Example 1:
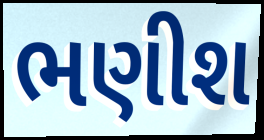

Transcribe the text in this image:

ભણીશ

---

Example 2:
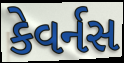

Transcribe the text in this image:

કેવર્નસ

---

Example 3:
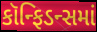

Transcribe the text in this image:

કૉન્ફિડન્સમાં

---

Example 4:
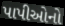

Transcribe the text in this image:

પાપીઓનો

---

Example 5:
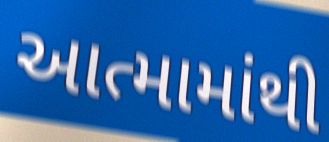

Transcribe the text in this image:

આત્મામાંથી